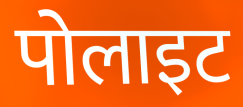
पोलाइट